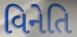
વિનેતિ